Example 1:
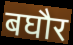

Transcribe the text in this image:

बघौर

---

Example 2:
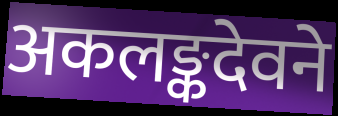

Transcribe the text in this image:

अकलङ्कदेवने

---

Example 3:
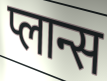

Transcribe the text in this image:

प्लान्स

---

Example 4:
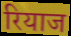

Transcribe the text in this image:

रियाज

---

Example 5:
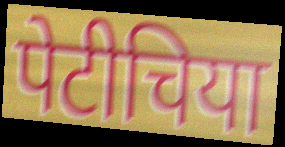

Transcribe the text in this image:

पेटीचिया